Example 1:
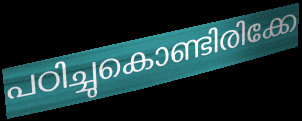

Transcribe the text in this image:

പഠിച്ചുകൊണ്ടിരിക്കേ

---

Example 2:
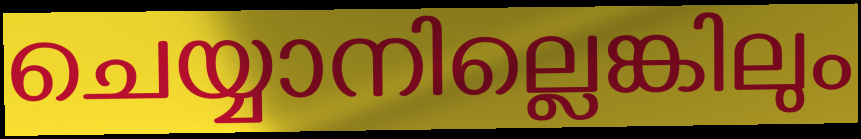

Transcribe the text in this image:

ചെയ്യാനില്ലെങ്കിലും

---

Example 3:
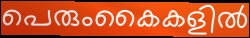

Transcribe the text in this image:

പെരുംകൈകളിൽ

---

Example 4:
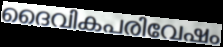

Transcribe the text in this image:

ദൈവികപരിവേഷം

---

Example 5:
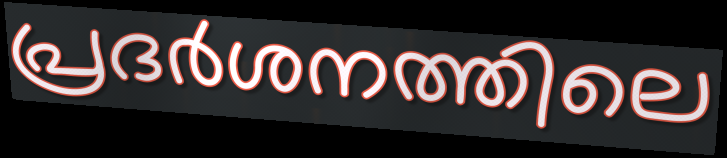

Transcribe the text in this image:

പ്രദർശനത്തിലെ